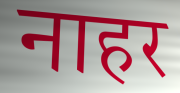
नाहर